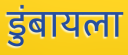
डुंबायला